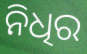
ନିଧିର